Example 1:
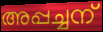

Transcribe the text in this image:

അപ്പച്ചന്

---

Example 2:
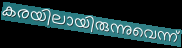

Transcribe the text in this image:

കരയിലായിരുന്നുവെന്ന്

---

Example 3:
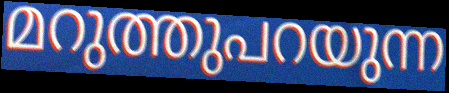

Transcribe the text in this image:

മറുത്തുപറയുന്ന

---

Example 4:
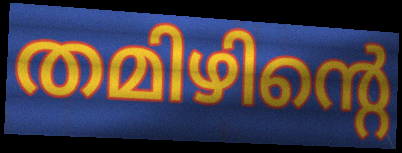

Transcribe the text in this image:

തമിഴിന്റെ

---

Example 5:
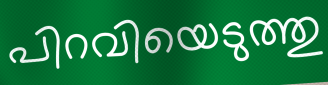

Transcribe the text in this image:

പിറവിയെടുത്തു